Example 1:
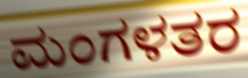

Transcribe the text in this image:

ಮಂಗಳತರ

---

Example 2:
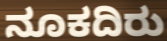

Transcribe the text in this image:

ನೂಕದಿರು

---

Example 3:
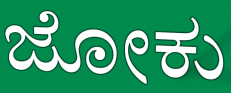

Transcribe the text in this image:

ಜೋಕು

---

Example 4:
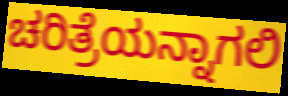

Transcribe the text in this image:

ಚರಿತ್ರೆಯನ್ನಾಗಲಿ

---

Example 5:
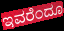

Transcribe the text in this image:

ಇವರೆಂದೂ